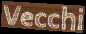
Vecchi